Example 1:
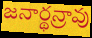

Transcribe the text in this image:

జనార్థన్రావు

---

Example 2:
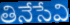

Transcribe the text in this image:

తినేసేవి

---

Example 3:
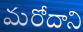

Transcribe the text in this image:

మరోదాని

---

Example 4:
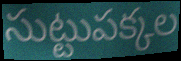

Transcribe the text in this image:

సుట్టుపక్కల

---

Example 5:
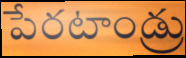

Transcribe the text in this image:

పేరటాండ్రు